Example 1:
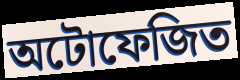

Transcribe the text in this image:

অটোফেজিত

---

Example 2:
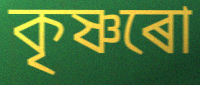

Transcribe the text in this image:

কৃষ্ণৰো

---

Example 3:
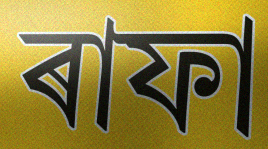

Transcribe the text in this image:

ৰাফা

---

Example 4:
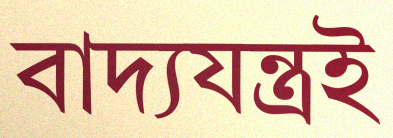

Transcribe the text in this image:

বাদ্যযন্ত্ৰই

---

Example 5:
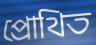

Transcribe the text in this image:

প্ৰোথিত